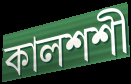
কালশশী